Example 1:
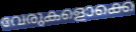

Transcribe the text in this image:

വേരുകളൊക്കെ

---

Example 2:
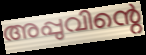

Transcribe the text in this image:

അപ്പുവിന്റെ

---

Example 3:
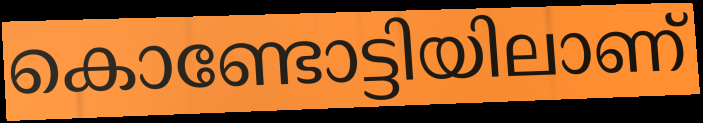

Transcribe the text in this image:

കൊണ്ടോട്ടിയിലാണ്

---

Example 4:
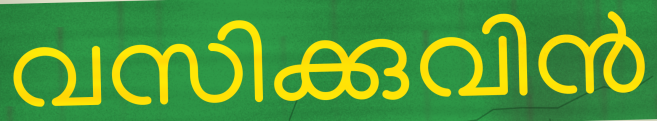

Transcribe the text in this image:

വസിക്കുവിൻ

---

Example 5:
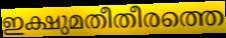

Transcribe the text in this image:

ഇക്ഷുമതീതീരത്തെ